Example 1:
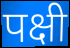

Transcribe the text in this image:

पक्षी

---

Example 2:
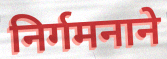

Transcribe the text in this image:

निर्गमनाने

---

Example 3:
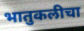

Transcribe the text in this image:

भातुकलीचा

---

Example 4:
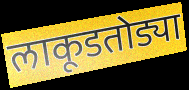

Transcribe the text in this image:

लाकूडतोड्या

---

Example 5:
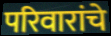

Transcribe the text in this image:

परिवारांचे